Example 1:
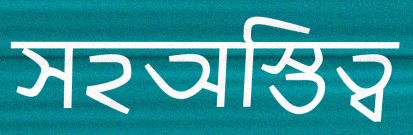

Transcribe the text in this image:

সহঅস্তিত্ব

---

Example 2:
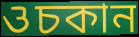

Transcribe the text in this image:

ওচকান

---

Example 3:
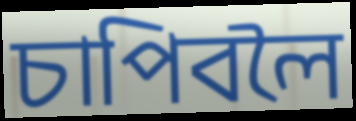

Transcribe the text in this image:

চাপিবলৈ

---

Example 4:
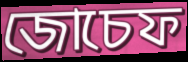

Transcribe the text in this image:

জোচেফ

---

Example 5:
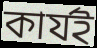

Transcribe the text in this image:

কাৰ্যই